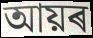
আয়ৰ